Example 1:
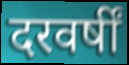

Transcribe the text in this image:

दरवर्षीं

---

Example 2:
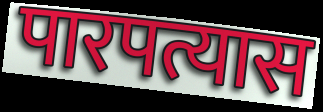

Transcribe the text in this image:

पारपत्यास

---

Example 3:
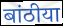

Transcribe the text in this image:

बांठीया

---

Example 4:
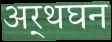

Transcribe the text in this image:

अर्थघन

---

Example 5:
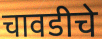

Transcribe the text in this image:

चावडीचे